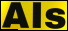
AIs